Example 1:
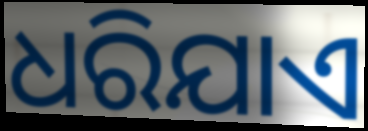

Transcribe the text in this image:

ଧରିଯାଏ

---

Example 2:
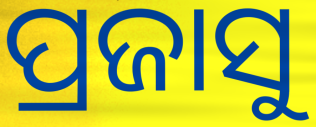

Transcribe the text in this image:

ପ୍ରଜାସୁ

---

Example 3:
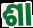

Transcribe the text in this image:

ଶା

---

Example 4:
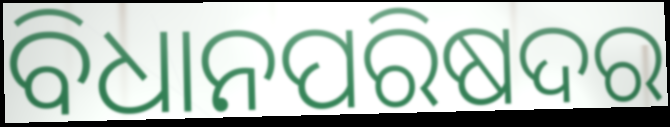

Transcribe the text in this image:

ବିଧାନପରିଷଦର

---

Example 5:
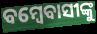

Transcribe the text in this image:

ବମ୍ବେବାସୀଙ୍କୁ